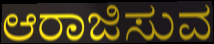
ಆರಾಜಿಸುವ